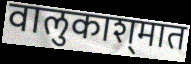
वालुकाश्मात